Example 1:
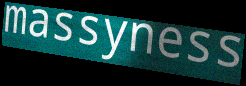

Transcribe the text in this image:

massyness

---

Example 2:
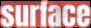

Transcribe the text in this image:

surface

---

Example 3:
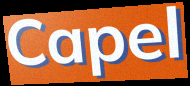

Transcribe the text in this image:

Capel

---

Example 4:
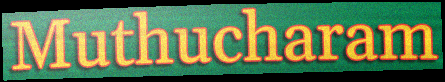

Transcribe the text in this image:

Muthucharam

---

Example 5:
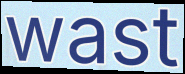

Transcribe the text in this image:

wast